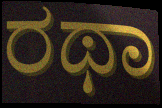
ರಥಾ